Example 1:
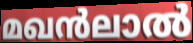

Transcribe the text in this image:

മഖൻലാൽ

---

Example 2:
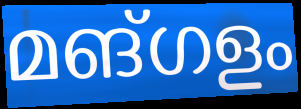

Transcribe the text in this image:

മങ്ഗളം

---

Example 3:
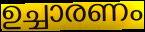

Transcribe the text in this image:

ഉച്ചാരണം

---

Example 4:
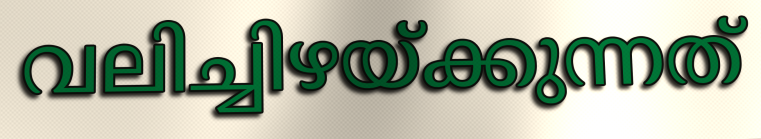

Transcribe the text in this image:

വലിച്ചിഴയ്ക്കുന്നത്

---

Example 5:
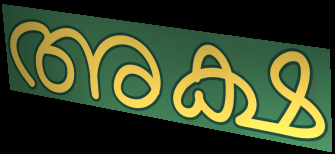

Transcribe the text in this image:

അക്ഷ